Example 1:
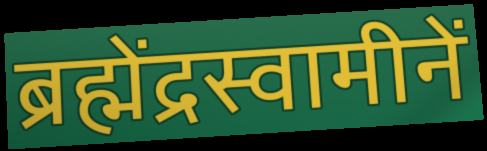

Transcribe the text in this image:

ब्रह्मेंद्रस्वामीनें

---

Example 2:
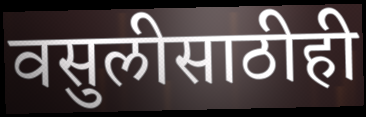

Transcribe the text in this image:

वसुलीसाठीही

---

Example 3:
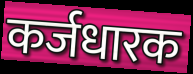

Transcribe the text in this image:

कर्जधारक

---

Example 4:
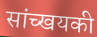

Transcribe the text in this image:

सांच्खयकी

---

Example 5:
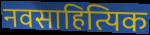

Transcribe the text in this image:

नवसाहित्यिक